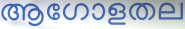
ആഗോളതല